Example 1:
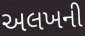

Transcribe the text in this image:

અલખની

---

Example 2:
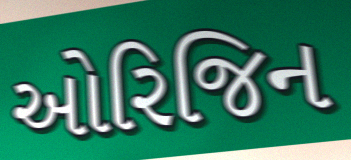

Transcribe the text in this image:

ઓરિજિન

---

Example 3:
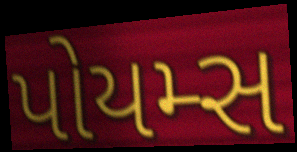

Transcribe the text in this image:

પોયમ્સ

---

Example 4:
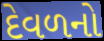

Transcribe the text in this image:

દેવળનો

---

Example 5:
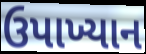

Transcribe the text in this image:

ઉપાખ્યાન